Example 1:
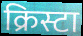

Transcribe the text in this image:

क्रिस्टा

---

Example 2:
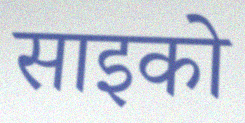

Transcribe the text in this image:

साइको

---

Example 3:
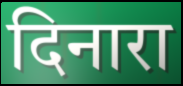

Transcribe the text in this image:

दिनारा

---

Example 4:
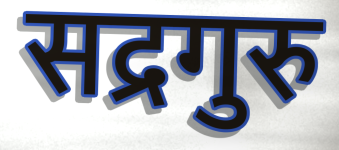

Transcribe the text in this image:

सद्रगुरु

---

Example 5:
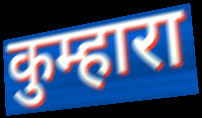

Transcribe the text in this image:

कुम्हारा